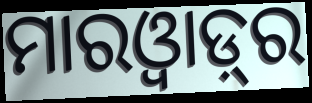
ମାରଓ୍ୱାଡ଼୍‌ର